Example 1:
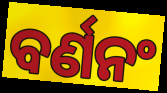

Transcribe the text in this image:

ବର୍ଣନଂ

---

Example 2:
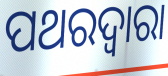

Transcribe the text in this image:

ପଥରଦ୍ୱାରା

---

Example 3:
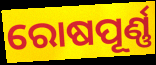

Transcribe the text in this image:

ରୋଷପୂର୍ଣ୍ଣ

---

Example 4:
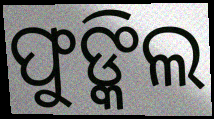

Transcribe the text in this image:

ଫୁଙ୍କିଲ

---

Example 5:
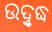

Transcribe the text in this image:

ଉଦ୍ବୃଦ୍ଧ